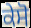
ਕੇਸੋ